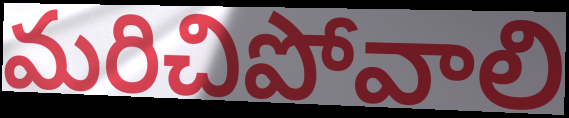
మరిచిపోవాలి